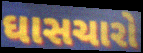
ઘાસચારો